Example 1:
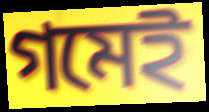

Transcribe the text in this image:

গমেই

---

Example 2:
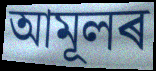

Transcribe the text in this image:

আমূলৰ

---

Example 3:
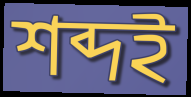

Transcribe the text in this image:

শব্দই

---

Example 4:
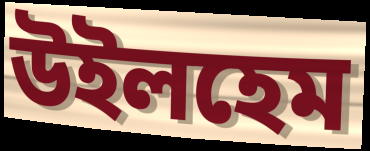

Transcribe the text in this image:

উইলহেম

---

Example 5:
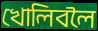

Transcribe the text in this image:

খোলিবলৈ